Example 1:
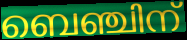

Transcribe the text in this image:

ബെഞ്ചിന്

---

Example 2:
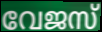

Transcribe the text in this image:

വേജസ്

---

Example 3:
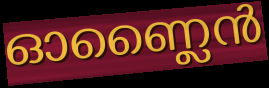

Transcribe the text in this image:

ഓണ്ലൈൻ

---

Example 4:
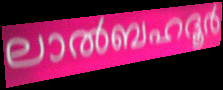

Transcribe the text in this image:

ലാൽബഹദൂർ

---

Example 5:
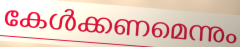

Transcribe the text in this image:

കേൾക്കണമെന്നും